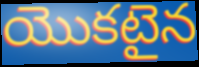
యొకటైన